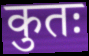
कुतः